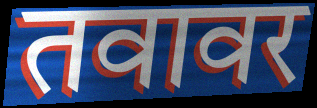
तवावर